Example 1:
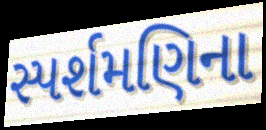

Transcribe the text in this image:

સ્પર્શમણિના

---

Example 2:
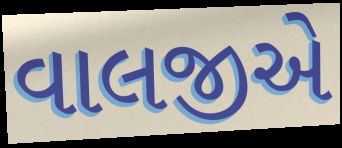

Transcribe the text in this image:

વાલજીએ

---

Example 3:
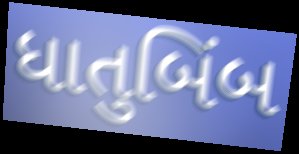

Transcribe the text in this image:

ધાતુબિંબ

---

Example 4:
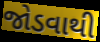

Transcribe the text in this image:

જોડવાથી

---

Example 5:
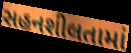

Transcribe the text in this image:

સહનશીલતામાં